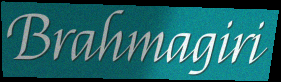
Brahmagiri